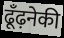
ढूँढ़नेकी